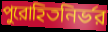
পুরোহিতনির্ভর